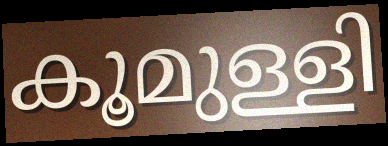
കൂമുള്ളി